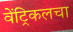
वेंट्रिकलचा